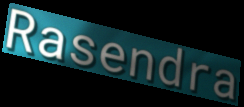
Rasendra